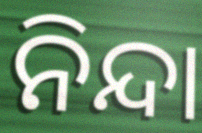
ନିନ୍ଦା